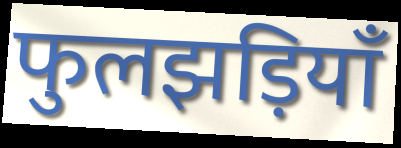
फुलझड़ियाँ